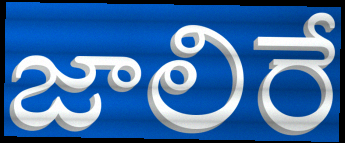
జాలిరే